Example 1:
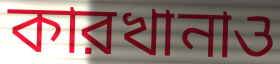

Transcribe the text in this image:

কারখানাও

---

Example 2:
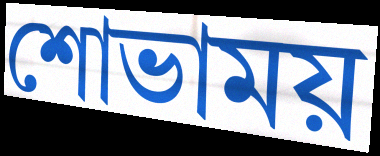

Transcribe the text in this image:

শোভাময়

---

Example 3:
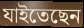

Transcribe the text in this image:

যাইতেছেন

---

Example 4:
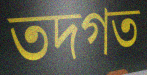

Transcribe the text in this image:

তদগত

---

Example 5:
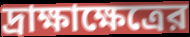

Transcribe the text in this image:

দ্রাক্ষাক্ষেত্রের